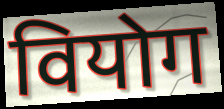
वियोग